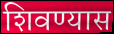
शिवण्यास